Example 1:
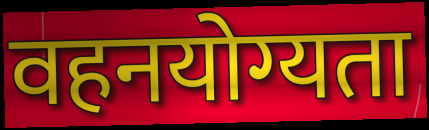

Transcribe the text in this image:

वहनयोग्यता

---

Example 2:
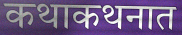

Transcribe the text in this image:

कथाकथनात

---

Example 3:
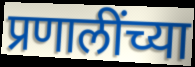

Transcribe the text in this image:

प्रणालींच्या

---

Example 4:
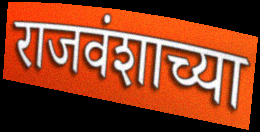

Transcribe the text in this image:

राजवंशाच्या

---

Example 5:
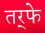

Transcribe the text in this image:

तर्फे